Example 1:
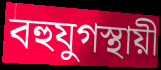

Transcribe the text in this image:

বহুযুগস্থায়ী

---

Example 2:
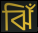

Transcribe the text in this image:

ঝিঁ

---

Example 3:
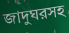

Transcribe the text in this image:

জাদুঘরসহ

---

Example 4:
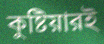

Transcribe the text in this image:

কুষ্টিয়ারই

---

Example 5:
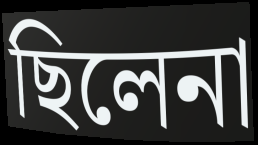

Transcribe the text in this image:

ছিলেনা